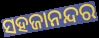
ସହଜାନନ୍ଦର